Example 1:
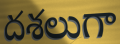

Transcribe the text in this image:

దశలుగా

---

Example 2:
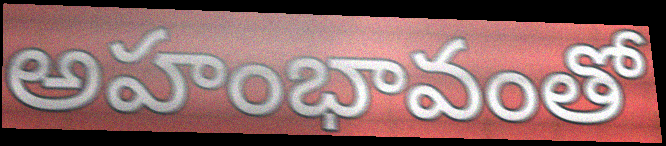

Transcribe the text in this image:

అహంభావంతో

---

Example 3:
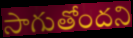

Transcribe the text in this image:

సాగుతోందని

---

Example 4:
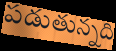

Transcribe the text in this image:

పడుతున్నది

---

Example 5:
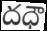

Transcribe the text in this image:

దధౌ